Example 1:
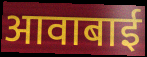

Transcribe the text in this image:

आवाबाई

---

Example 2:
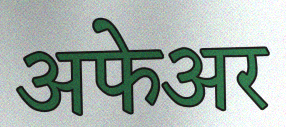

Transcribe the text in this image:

अफेअर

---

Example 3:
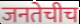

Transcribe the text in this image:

जनतेचीच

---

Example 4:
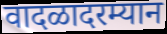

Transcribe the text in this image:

वादळादरम्यान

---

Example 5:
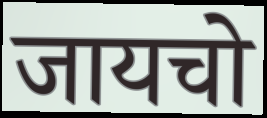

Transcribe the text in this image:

जायचो